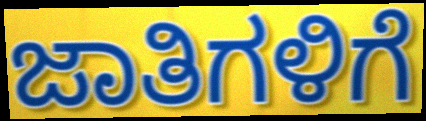
ಜಾತಿಗಳಿಗೆ